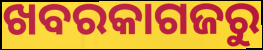
ଖବରକାଗଜରୁ